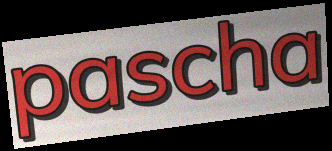
pascha